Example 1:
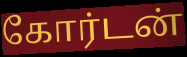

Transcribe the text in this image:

கோர்டன்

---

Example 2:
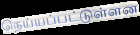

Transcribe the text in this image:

நெய்யப்பட்டுள்ளன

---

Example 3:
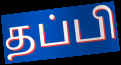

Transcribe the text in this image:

தப்பி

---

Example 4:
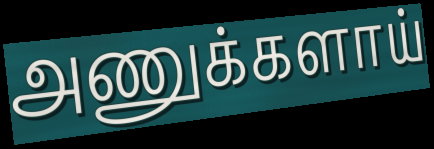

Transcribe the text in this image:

அணுக்களாய்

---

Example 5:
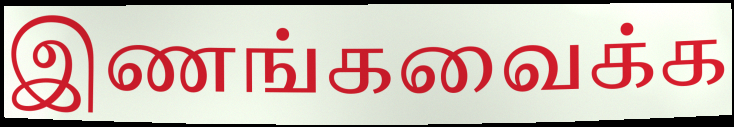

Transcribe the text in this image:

இணங்கவைக்க